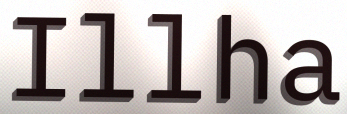
Illha